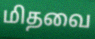
மிதவை